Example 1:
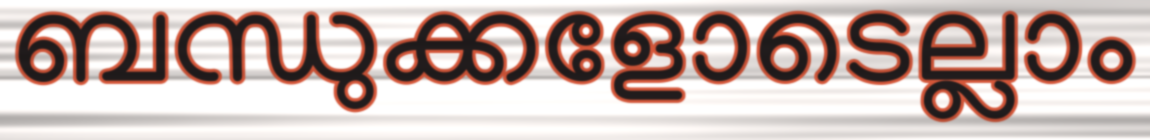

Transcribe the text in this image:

ബന്ധുക്കളോടെല്ലാം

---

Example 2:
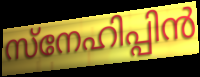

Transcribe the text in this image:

സ്നേഹിപ്പിൻ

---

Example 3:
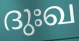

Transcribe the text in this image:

ദുഃഖ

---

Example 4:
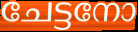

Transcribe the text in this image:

ചേട്ടനോ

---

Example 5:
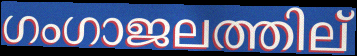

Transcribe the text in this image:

ഗംഗാജലത്തില്